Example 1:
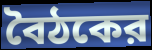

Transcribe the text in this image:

বৈঠকের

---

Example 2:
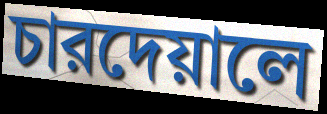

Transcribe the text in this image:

চারদেয়ালে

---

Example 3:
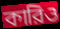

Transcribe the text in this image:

কারিও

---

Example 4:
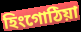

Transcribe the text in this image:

হিংগোঠিয়া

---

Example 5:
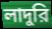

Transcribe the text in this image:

লাদুরি